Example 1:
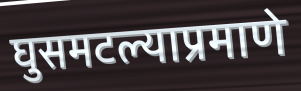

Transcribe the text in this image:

घुसमटल्याप्रमाणे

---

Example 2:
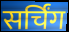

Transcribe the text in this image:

सर्चिंग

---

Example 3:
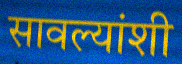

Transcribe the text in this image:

सावल्यांशी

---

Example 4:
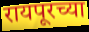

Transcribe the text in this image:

रायपूरच्या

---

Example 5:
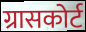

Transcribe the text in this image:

ग्रासकोर्ट